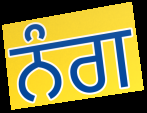
ਨੰਗ